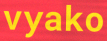
vyako